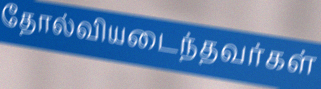
தோல்வியடைந்தவர்கள்